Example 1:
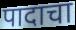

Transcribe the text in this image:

पादाचा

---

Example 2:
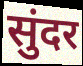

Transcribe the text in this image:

सुंदर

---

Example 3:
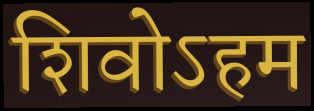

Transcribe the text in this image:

शिवोऽहम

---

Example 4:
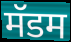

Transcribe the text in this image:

मॅडम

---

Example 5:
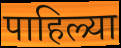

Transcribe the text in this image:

पाहिल्या